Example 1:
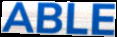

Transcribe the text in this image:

ABLE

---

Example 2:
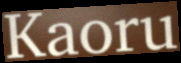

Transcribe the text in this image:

Kaoru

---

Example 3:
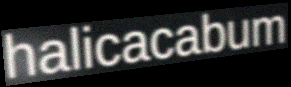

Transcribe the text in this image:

halicacabum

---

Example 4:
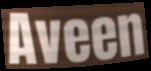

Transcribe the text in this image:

Aveen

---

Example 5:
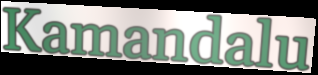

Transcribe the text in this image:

Kamandalu